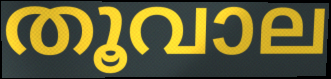
തൂവാല